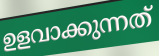
ഉളവാക്കുന്നത്